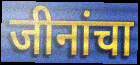
जीनांचा